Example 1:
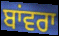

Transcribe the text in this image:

ਬਾਂਵਰਾ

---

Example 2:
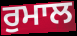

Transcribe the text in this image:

ਰੁਮਾਲ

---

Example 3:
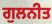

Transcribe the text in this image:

ਗੁਲਨੀਤ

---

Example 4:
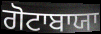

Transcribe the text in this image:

ਗੋਟਾਬਾਯਾ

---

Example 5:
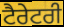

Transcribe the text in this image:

ਟੈਰੇਟਰੀ